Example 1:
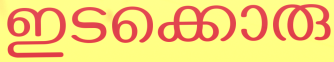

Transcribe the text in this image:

ഇടക്കൊരു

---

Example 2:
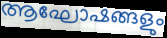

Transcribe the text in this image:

ആഘോഷങ്ങളും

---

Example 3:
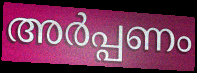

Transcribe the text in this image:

അർപ്പണം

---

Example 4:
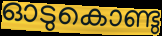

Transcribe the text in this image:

ഓടുകൊണ്ടു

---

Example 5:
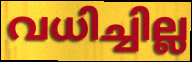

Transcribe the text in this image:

വധിച്ചില്ല